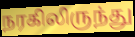
நரகிலிருந்து